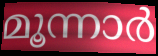
മൂന്നാർ